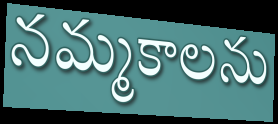
నమ్మకాలను